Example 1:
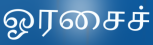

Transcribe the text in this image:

ஓரசைச்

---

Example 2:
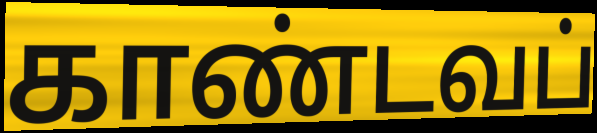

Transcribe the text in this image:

காண்டவப்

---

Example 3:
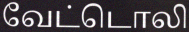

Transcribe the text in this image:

வேட்டொலி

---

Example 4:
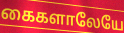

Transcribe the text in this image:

கைகளாலேயே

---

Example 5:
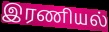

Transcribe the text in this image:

இரணியல்